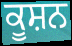
ਕੂਸ਼ਨ